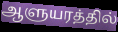
ஆளுயரத்தில்